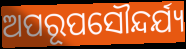
ଅପରୂପସୌନ୍ଦର୍ଯ୍ୟ